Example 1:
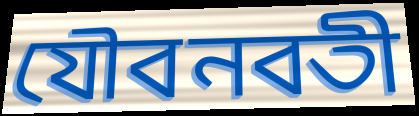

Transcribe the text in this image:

যৌবনবতী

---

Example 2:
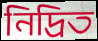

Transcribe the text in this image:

নিদ্রিত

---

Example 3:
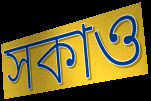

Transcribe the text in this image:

সকাও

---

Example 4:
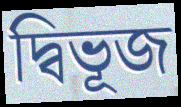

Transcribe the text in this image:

দ্বিভূজ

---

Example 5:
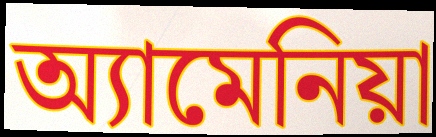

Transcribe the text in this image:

অ্যামেনিয়া